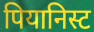
पियानिस्ट